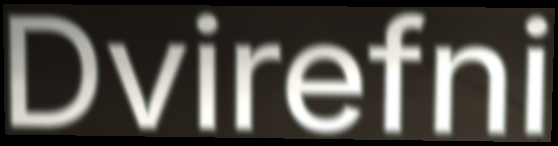
Dvirefni